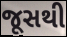
જૂસથી